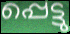
പ്പെട്ടു